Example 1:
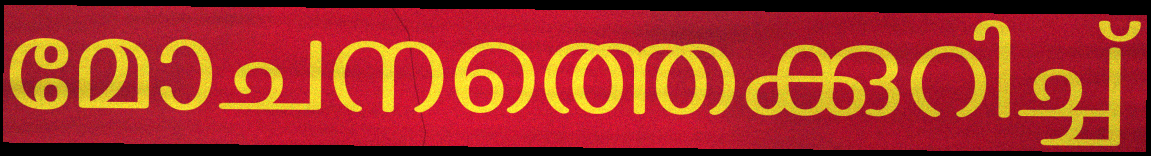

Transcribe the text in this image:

മോചനത്തെക്കുറിച്ച്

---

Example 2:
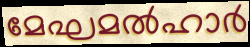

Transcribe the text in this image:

മേഘമൽഹാർ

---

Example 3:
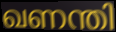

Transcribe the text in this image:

ഖണന്തി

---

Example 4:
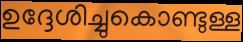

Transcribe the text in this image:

ഉദ്ദേശിച്ചുകൊണ്ടുള്ള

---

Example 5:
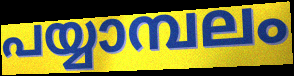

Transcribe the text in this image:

പയ്യാമ്പലം